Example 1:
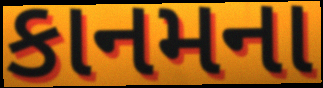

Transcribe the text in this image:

કાનમના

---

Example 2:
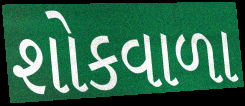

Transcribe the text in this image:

શોકવાળા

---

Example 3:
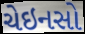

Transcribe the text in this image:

ચેઇનસો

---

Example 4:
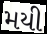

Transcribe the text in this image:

મયી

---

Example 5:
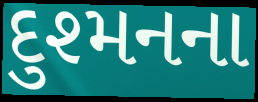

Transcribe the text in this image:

દુશ્મનના